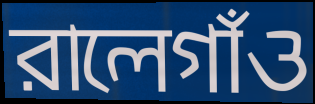
রালেগাঁও